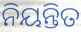
ନିୟନ୍ତିତ